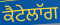
ਕੈਟੇਲਾੱਗ